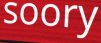
soory